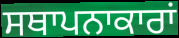
ਸਥਾਪਨਾਕਾਰਾਂ